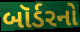
બૉર્ડરનો